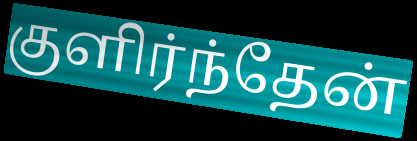
குளிர்ந்தேன்